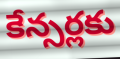
కేన్సర్లకు